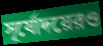
সূর্যোদয়েরও